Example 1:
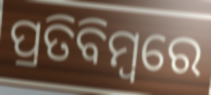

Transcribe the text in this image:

ପ୍ରତିବିମ୍ବରେ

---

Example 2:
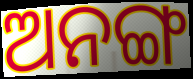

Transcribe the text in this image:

ଅନଙ୍ଗ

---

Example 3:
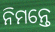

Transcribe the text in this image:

ନିମନ୍ତେ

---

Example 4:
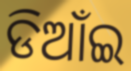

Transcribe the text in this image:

ଡିଆଁଇ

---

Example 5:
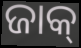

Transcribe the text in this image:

ଜାକ୍